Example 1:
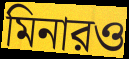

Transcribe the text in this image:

মিনারও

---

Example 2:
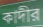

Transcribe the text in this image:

কাদীর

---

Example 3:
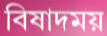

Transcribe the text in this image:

বিষাদময়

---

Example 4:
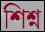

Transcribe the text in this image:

শিশ্ন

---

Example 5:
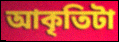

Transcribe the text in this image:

আকৃতিটা